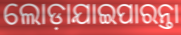
ଲୋଡ଼ାଯାଇପାରନ୍ତା